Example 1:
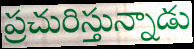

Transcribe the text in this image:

ప్రచురిస్తున్నాడు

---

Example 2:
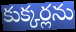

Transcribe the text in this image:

కుక్కర్లను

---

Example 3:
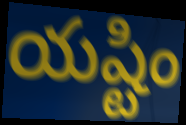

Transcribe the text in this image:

యష్టిం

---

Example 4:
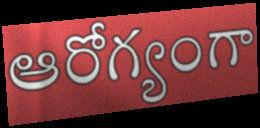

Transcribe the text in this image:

ఆరోగ్యంగా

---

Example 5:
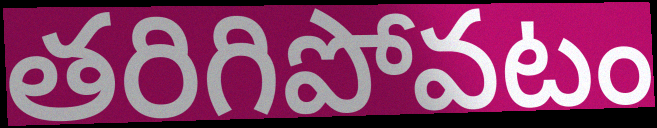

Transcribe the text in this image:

తరిగిపోవటం